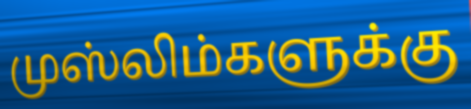
முஸ்லிம்களுக்கு